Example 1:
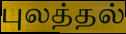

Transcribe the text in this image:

புலத்தல்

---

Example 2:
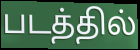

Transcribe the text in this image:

படத்தில்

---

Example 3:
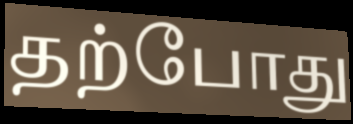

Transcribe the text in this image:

தற்போது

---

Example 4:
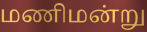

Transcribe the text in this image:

மணிமன்று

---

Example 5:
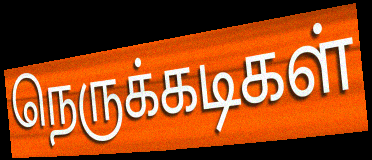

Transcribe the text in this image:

நெருக்கடிகள்